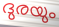
ദുരയും